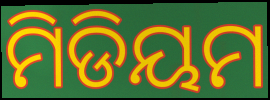
ମିଡିୟମ